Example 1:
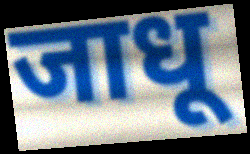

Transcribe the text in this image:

जाधू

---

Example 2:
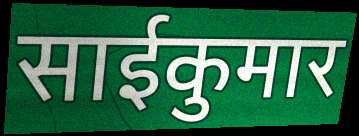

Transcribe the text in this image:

साईकुमार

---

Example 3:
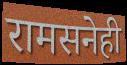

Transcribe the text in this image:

रामसनेही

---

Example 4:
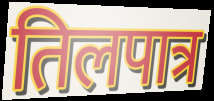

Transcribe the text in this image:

तिलपात्र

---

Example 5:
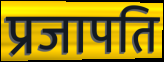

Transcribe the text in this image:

प्रजापति